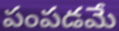
పంపడమే